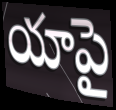
యాపై